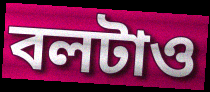
বলটাও